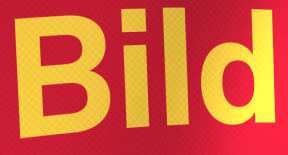
Bild